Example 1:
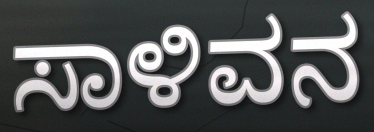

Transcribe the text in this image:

ಸಾಳಿವನ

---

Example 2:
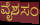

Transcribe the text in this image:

ವೈಶಸಂ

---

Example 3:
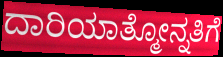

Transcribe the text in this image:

ದಾರಿಯಾತ್ಮೋನ್ನತಿಗೆ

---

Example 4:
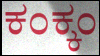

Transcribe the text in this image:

ಕಂಕ್ಕಂ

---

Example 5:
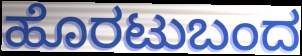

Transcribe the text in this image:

ಹೊರಟುಬಂದ